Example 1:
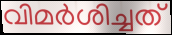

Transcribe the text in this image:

വിമർശിച്ചത്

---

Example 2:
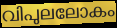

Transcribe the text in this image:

വിപുലലോകം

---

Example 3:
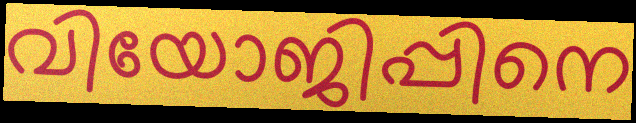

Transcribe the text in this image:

വിയോജിപ്പിനെ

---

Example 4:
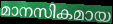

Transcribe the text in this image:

മാനസികമായ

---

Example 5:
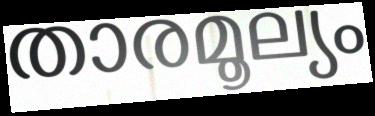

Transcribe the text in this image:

താരമൂല്യം